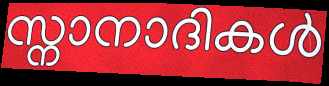
സ്നാനാദികൾ